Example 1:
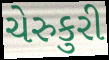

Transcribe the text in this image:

ચેરુકુરી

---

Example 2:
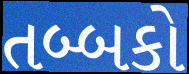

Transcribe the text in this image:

તબ્બકો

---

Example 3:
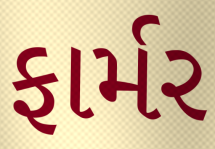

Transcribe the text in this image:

ફાર્મર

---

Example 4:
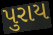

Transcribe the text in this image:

પુરાય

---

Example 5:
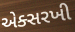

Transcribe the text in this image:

એક્સરખી